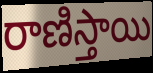
రాణిస్తాయి